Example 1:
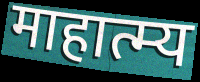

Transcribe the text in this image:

माहात्म्य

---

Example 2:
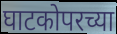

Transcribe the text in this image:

घाटकोपरच्या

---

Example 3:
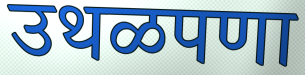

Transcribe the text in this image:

उथळपणा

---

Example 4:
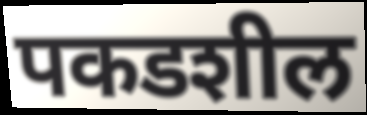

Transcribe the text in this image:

पकडशील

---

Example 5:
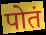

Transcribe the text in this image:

पोतं